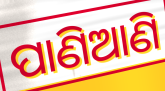
ପାଣିଆଣି